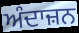
ਅੰਦਾਜ਼ਨ